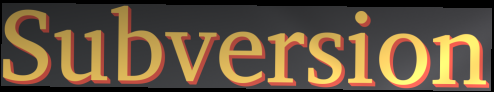
Subversion